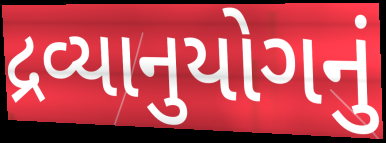
દ્રવ્યાનુયોગનું